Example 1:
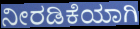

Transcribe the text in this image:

ನೀರಡಿಕೆಯಾಗಿ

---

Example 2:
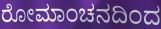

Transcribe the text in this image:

ರೋಮಾಂಚನದಿಂದ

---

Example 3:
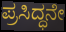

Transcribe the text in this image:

ಪ್ರಸಿದ್ಧನೇ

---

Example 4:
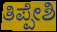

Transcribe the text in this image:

ತಿಪ್ಪೇಶಿ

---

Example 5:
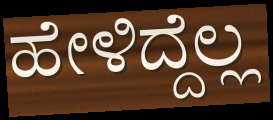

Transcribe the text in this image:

ಹೇಳಿದ್ದೆಲ್ಲ